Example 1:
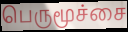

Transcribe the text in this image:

பெருமூச்சை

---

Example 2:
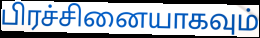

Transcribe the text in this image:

பிரச்சினையாகவும்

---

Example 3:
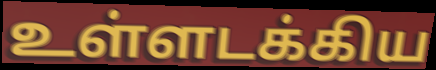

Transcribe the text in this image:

உள்ளடக்கிய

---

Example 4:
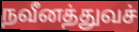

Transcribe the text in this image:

நவீனத்துவச்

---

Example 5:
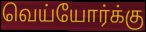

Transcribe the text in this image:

வெய்யோர்க்கு